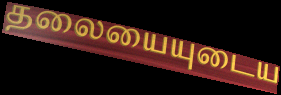
தலையையுடைய